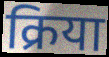
क्रिया